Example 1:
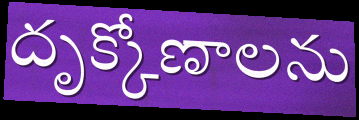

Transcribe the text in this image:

దృక్కోణాలను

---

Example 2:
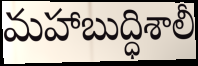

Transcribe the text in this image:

మహాబుద్ధిశాలీ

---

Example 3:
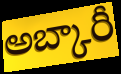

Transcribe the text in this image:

అబ్కారీ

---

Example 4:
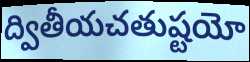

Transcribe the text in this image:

ద్వితీయచతుష్టయో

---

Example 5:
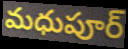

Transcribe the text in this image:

మధుపూర్